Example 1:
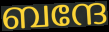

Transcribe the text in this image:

ബന്ദേ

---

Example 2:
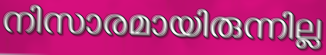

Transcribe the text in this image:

നിസാരമായിരുന്നില്ല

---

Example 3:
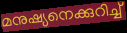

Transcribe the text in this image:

മനുഷ്യനെക്കുറിച്ച്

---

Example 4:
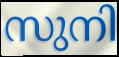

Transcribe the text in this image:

സുനി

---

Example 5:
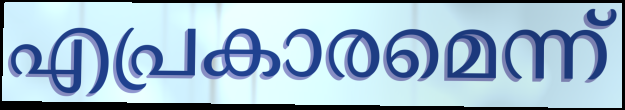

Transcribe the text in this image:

എപ്രകാരമെന്ന്